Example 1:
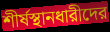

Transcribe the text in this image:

শীর্ষস্থানধারীদের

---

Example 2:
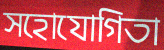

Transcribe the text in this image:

সহোযোগিতা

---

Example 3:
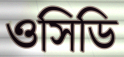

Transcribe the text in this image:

ওসিডি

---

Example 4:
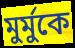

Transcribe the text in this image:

মুর্মুকে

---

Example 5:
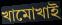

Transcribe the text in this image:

খামোখাই